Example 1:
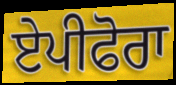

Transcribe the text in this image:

ਏਪੀਫੋਰਾ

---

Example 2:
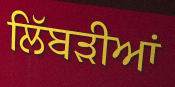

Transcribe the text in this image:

ਲਿੱਬੜੀਆਂ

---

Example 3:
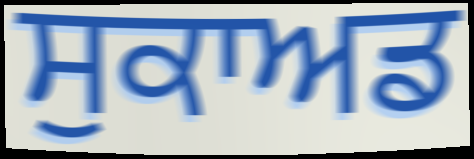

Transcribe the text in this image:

ਸੁਕਾਅਡ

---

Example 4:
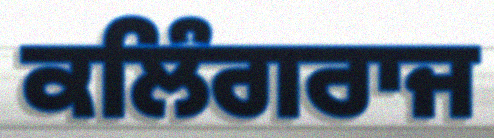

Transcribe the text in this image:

ਕਲਿੰਗਰਾਜ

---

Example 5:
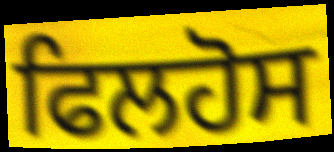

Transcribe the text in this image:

ਫਿਲਹੋਸ